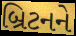
બ્રિટનને